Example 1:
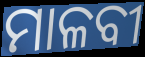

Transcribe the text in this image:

ମାଳବୀ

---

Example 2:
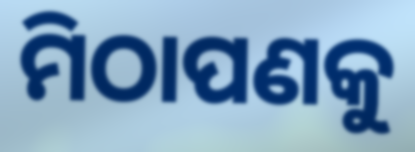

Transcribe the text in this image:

ମିଠାପଣକୁ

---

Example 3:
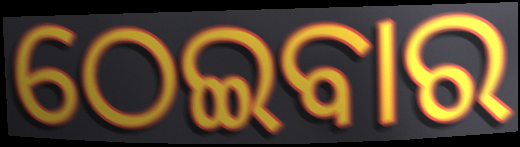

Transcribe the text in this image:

ଠେଇବାର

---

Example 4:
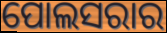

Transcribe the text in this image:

ପୋଲସରାର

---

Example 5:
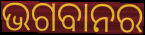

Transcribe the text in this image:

ଭଗବାନର